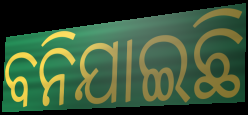
ବନିଯାଇଛି